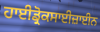
ਹਾਈਡ੍ਰੋਕਸਾਈਜ਼ਾਈਨ